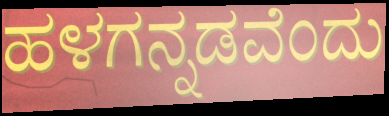
ಹಳಗನ್ನಡವೆಂದು